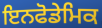
ਇਨਫੋਡੇਮਿਕ